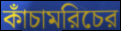
কাঁচামরিচের